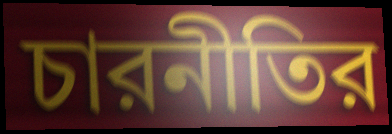
চারনীতির